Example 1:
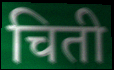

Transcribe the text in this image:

चिती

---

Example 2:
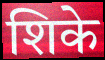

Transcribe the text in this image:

शिके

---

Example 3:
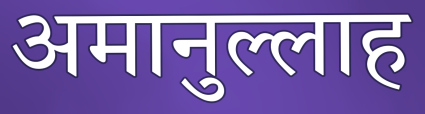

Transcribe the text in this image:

अमानुल्लाह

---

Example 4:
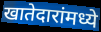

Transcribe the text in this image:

खातेदारांमध्ये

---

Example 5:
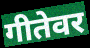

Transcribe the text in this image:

गीतेवर